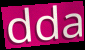
dda